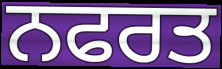
ਨਫਰਤ